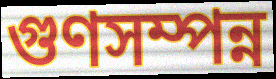
গুণসম্পন্ন